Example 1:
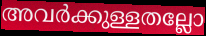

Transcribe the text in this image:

അവർക്കുള്ളതല്ലോ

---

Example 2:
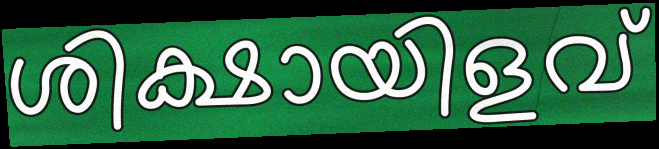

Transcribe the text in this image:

ശിക്ഷായിളവ്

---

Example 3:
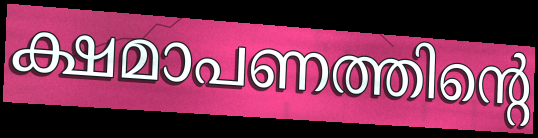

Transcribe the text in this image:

ക്ഷമാപണത്തിന്റെ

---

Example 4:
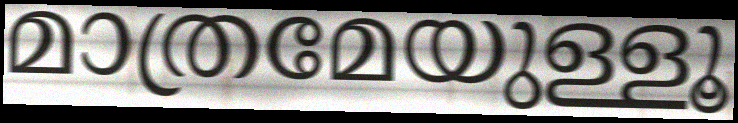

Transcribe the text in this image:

മാത്രമേയുള്ളൂ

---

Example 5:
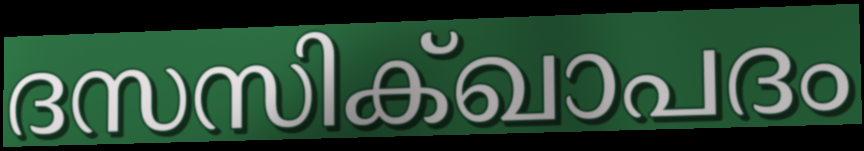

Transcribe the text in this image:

ദസസിക്ഖാപദം